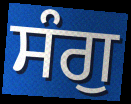
ਸੰਗੁ